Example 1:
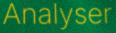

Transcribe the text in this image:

Analyser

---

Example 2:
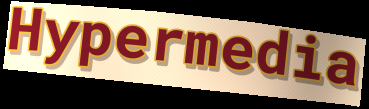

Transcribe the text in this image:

Hypermedia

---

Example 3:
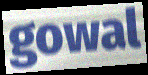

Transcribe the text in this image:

gowal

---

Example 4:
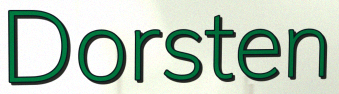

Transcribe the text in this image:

Dorsten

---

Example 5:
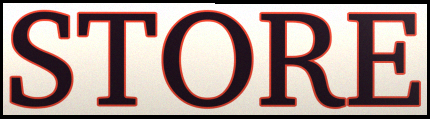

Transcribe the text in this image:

STORE